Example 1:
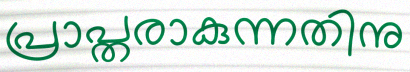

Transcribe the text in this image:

പ്രാപ്തരാകുന്നതിനു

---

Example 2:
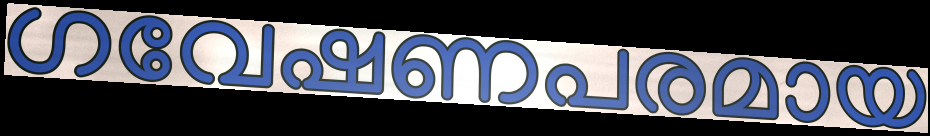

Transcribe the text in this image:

ഗവേഷണപരമായ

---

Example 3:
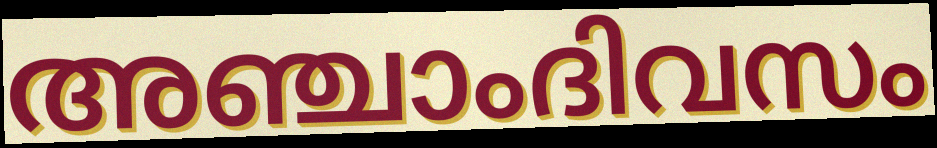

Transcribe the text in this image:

അഞ്ചാംദിവസം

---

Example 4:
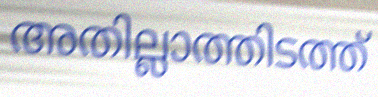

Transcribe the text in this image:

അതില്ലാത്തിടത്ത്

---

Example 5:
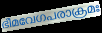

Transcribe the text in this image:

ഭീമവേഗപരാക്രമഃ